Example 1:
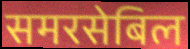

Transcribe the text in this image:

समरसेबिल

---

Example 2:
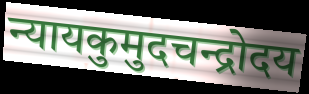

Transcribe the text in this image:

न्यायकुमुदचन्द्रोदय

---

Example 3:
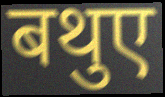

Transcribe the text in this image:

बथुए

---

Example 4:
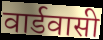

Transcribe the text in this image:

वार्डवासी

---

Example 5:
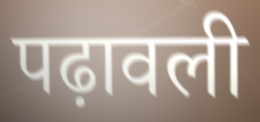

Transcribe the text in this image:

पढ़ावली